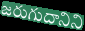
జరుగుదానిని